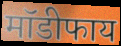
मॉडीफाय